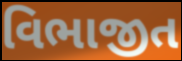
વિભાજીત